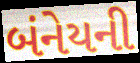
બંનેયની